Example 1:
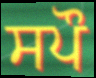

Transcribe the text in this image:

ਸਪੌ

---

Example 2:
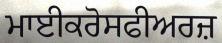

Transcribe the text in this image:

ਮਾਈਕਰੋਸਫੀਅਰਜ਼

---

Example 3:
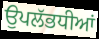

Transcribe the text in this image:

ਉਪਲੱਭਧੀਆਂ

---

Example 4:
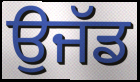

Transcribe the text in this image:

ਉਜੱਡ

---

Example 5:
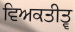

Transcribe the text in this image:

ਵਿਅਕਤੀਤ੍ਵ